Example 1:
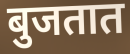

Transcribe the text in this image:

बुजतात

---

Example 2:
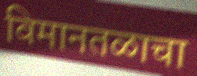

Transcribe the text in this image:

विमानतळाचा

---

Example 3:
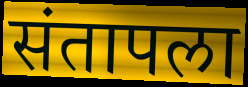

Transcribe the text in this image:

संतापला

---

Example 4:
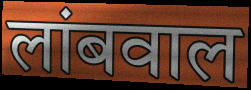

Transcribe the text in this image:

लांबवाल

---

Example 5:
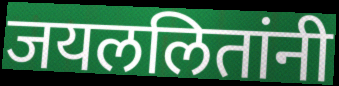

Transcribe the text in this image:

जयललितांनी